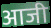
आजी